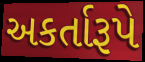
અકર્તારૂપે